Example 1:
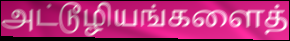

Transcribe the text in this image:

அட்டூழியங்களைத்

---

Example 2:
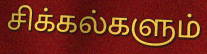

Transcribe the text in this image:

சிக்கல்களும்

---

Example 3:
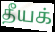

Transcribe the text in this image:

தீயக்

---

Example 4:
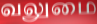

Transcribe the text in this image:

வலுமை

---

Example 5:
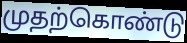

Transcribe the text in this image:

முதற்கொண்டு